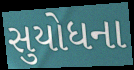
સુયોધના